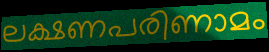
ലക്ഷണപരിണാമം